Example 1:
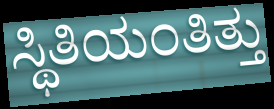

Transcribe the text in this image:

ಸ್ಥಿತಿಯಂತಿತ್ತು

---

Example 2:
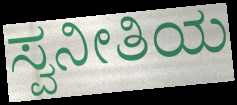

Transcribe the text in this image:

ಸ್ವನೀತಿಯ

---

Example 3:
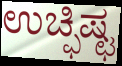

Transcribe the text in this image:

ಉಚ್ಫಿಷ್ಟ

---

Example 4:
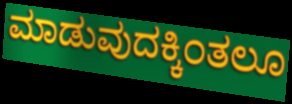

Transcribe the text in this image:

ಮಾಡುವುದಕ್ಕಿಂತಲೂ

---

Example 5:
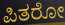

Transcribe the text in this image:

ಪಿತರೋ